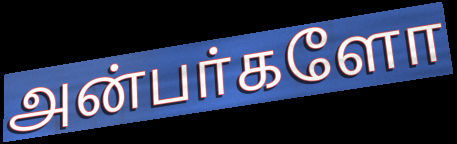
அன்பர்களோ